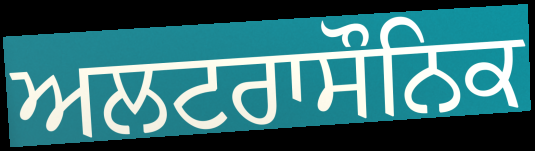
ਅਲਟਰਾਸੌਨਿਕ